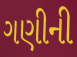
ગણીની